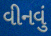
વીનવું